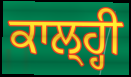
ਕਾਲ੍ਹ੍ਹੀ